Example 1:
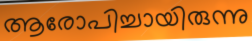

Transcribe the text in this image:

ആരോപിച്ചായിരുന്നു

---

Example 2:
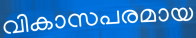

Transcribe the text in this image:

വികാസപരമായ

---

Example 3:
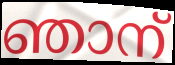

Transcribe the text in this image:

ഞാന്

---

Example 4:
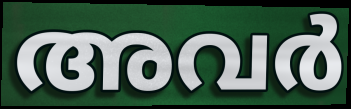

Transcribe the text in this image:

അവർ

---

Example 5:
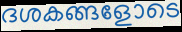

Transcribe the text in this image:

ദശകങ്ങളോടെ